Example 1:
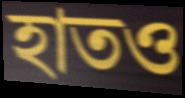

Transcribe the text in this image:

হাতও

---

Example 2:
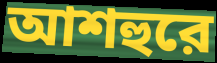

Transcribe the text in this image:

আশহুরে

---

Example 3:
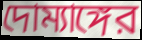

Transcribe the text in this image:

দোম্যাঙ্গের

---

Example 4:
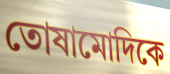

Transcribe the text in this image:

তোষামোদিকে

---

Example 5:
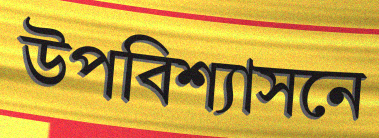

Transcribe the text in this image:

উপবিশ্যাসনে